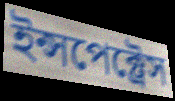
ইন্সপেক্ট্রেস